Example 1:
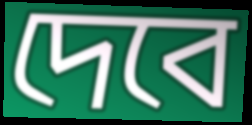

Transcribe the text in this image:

দেবে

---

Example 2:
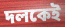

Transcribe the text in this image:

দলকেই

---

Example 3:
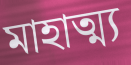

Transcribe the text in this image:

মাহাত্ম্য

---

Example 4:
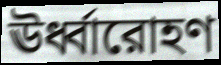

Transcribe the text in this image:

ঊর্ধ্বারোহণ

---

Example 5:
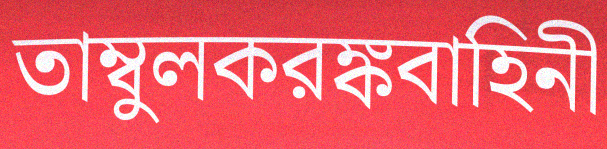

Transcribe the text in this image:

তাম্বুলকরঙ্কবাহিনী